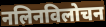
नलिनविलोचन